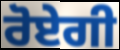
ਰੋਏਗੀ